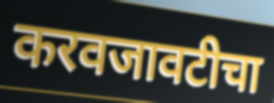
करवजावटीचा